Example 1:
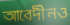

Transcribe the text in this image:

আবেদীনও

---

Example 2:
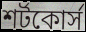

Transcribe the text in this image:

শর্টকোর্স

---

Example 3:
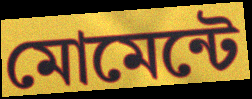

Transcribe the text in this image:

মোমেন্টে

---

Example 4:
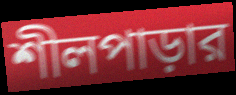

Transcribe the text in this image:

শীলপাড়ার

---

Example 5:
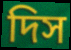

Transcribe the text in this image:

দিস